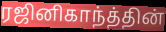
ரஜினிகாந்த்தின்